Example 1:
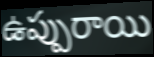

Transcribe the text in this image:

ఉప్పురాయి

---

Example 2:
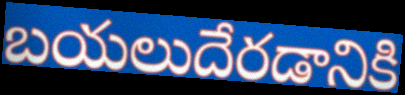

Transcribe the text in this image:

బయలుదేరడానికి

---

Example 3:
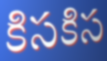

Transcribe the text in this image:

కిసకిస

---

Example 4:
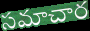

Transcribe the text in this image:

సమాచార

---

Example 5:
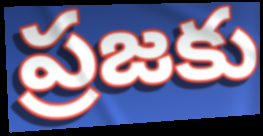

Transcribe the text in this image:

ప్రజకు